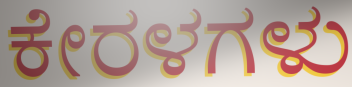
ಕೇರಳಗಳು